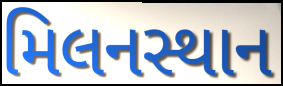
મિલનસ્થાન